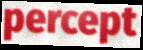
percept